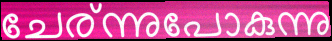
ചേര്ന്നുപോകുന്നു